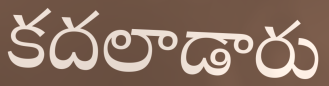
కదలాడారు